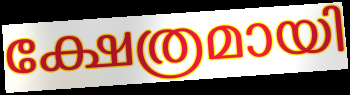
ക്ഷേത്രമായി